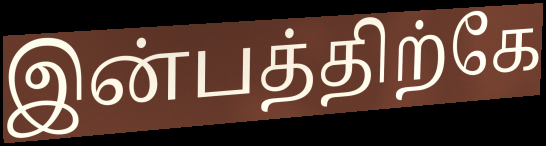
இன்பத்திற்கே